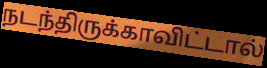
நடந்திருக்காவிட்டால்